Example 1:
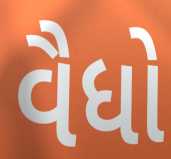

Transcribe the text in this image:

વૈધો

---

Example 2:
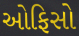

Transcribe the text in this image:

ઓફિસો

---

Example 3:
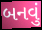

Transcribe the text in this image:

બનવું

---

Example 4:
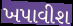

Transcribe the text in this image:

ખપાવીશ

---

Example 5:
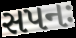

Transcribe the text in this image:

સપનઃ